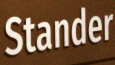
Stander